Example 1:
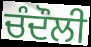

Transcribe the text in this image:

ਚੰਦੌਲੀ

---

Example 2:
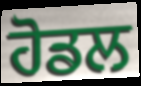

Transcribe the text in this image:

ਹੋਡਲ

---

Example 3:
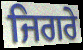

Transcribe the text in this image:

ਜਿਗਰੇ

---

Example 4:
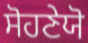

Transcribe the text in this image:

ਸੋਹਣੇਯੋ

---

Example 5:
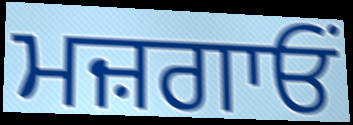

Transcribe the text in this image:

ਮਜ਼ਗਾਓਂ